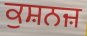
ਕੁਸ਼ਨਜ਼